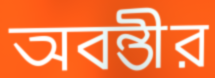
অবন্তীর